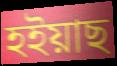
হইয়াছ